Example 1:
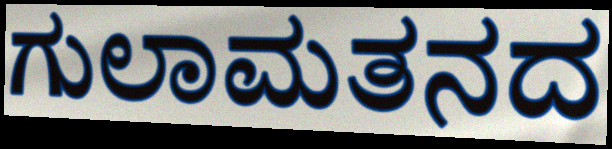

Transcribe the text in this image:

ಗುಲಾಮತನದ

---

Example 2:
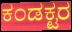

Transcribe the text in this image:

ಕಂಡಕ್ಟರ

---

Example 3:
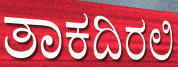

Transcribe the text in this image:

ತಾಕದಿರಲಿ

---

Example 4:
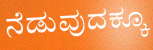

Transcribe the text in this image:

ನೆಡುವುದಕ್ಕೂ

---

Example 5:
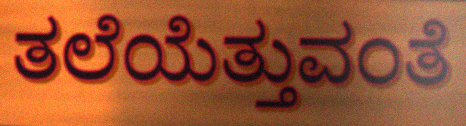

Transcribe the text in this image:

ತಲೆಯೆತ್ತುವಂತೆ